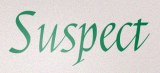
Suspect